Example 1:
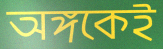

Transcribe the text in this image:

অঙ্গকেই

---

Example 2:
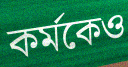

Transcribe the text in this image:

কর্মকেও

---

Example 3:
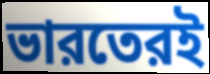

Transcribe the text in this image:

ভারতেরই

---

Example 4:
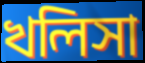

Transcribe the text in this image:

খলিসা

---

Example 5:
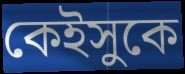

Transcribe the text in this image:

কেইসুকে